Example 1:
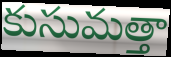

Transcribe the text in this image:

కుసుమత్తా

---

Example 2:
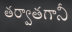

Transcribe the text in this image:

తర్వాతగానీ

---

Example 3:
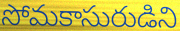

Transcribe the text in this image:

సోమకాసురుడిని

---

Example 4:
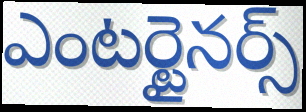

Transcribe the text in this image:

ఎంటర్టైనర్స్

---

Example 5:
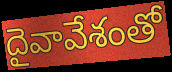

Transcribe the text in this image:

దైవావేశంతో